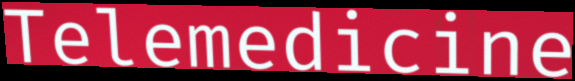
Telemedicine